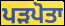
ਪੜਪੋਤਾ